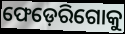
ଫେଡ଼େରିଗୋକୁ